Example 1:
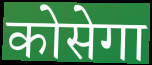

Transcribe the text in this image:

कोसेगा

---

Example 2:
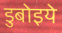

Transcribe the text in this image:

डुबोइये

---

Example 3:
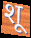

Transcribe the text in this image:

शू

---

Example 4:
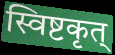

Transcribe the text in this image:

स्विष्टकृत्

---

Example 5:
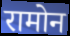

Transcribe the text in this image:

रामोन